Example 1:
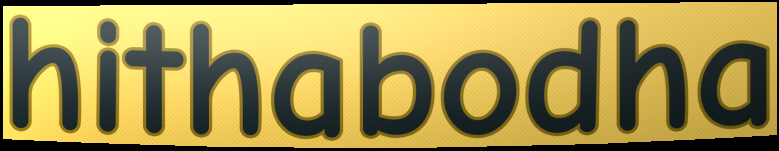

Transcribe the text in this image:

hithabodha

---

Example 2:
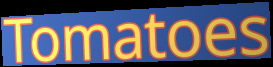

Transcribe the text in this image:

Tomatoes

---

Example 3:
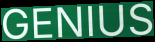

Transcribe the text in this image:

GENIUS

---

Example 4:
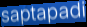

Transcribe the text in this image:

saptapadi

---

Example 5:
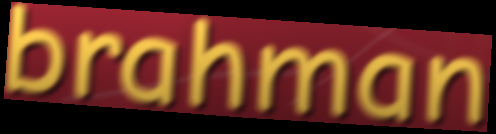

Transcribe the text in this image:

brahman